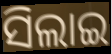
ସିଲାଇ